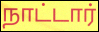
நாட்டார்